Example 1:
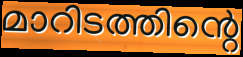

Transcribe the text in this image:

മാറിടത്തിന്റെ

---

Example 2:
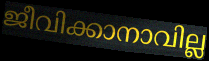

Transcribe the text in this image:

ജീവിക്കാനാവില്ല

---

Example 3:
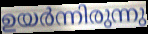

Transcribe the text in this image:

ഉയർന്നിരുന്നു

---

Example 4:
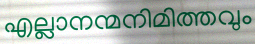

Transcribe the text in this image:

എല്ലാനന്മനിമിത്തവും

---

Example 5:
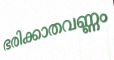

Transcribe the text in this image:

ഭരിക്കാതവണ്ണം